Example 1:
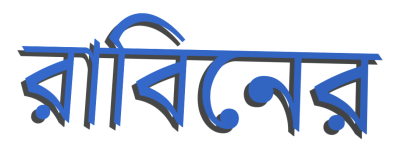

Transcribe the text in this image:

রাবিনের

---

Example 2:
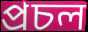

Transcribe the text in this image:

প্রচল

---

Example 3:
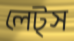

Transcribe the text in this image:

লেট্‌স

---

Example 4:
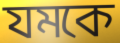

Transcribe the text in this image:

যমকে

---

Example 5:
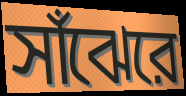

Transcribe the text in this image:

সাঁঝেরে